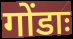
गोंडाः